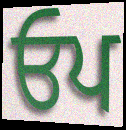
ਓਪ